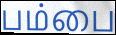
பம்பை